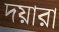
দয়ারা